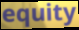
equity